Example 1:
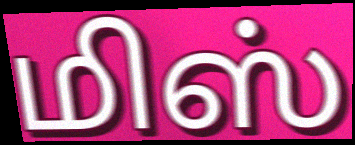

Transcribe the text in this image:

மிஸ்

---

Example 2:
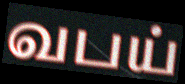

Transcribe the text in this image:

வபய்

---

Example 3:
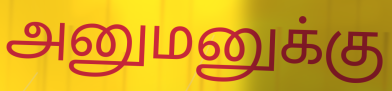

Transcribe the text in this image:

அனுமனுக்கு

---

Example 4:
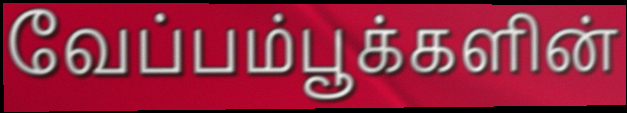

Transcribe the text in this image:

வேப்பம்பூக்களின்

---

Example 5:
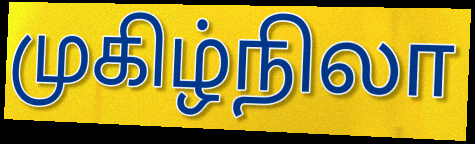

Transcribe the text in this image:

முகிழ்நிலா